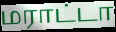
மராட்டா